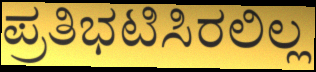
ಪ್ರತಿಭಟಿಸಿರಲಿಲ್ಲ